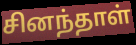
சினந்தாள்